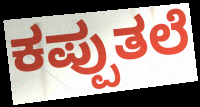
ಕಪ್ಪುತಲೆ